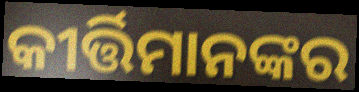
କୀର୍ତ୍ତିମାନଙ୍କର